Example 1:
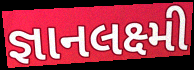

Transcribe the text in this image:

જ્ઞાનલક્ષ્મી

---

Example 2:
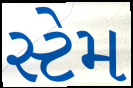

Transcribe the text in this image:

સ્ટેમ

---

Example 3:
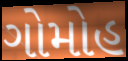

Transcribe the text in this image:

ગોમોહ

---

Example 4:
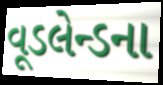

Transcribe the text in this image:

વૂડલેન્ડના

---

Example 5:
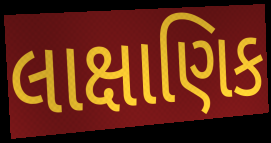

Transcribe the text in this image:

લાક્ષાણિક